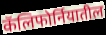
कॅलिफोर्नियातील